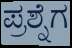
ಪ್ರಶ್ನೆಗ